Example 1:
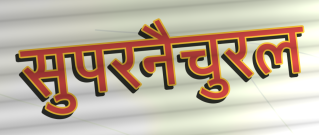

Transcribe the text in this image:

सुपरनैचुरल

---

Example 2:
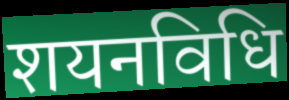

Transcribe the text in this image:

शयनविधि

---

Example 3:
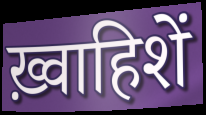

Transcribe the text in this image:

ख़्वाहिशें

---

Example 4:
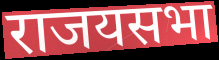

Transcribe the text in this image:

राजयसभा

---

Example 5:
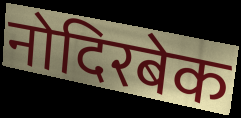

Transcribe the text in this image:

नोदिरबेक